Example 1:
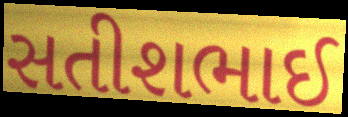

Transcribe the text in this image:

સતીશભાઈ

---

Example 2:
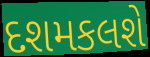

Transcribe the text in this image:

દશમકલશે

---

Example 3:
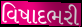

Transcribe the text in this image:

વિષાદભરી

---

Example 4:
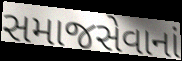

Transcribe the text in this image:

સમાજસેવાનાં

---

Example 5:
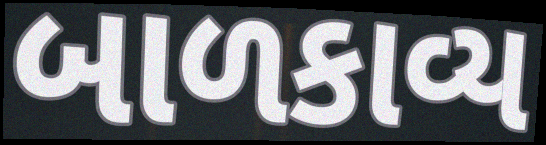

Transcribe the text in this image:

બાળકાવ્ય